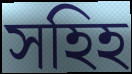
সহিহ